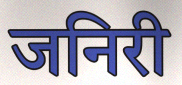
जनिरी